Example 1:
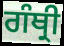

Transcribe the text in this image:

ਗੰਥ੍ਰੀ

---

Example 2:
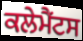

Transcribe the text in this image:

ਕਲੇਮੈਂਟਸ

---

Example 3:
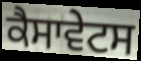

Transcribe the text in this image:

ਕੈਸਾਵੇਟਸ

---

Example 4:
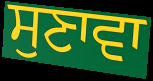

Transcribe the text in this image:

ਸੁਣਾਵਾ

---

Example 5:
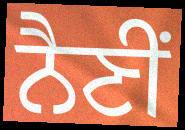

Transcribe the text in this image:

ਨੈਣੀਂ